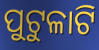
ପୁଟୁଳାଟି